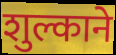
शुल्काने